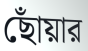
ছোঁয়ার